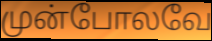
முன்போலவே